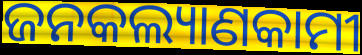
ଜନକଲ୍ୟାଣକାମୀ